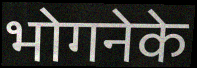
भोगनेके